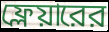
ফ্লেয়ারের